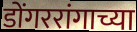
डोंगररांगाच्या